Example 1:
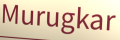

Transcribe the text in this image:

Murugkar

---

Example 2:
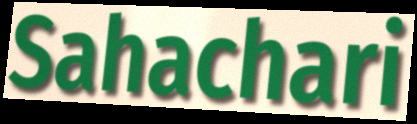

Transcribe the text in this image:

Sahachari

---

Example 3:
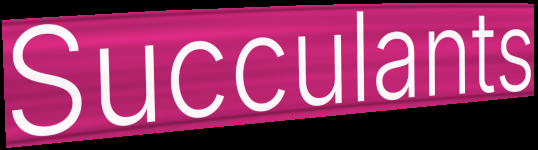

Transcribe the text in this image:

Succulants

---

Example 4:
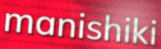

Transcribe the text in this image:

manishiki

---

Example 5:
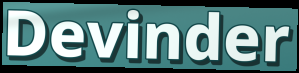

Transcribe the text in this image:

Devinder